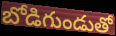
బోడిగుండుతో